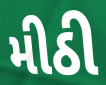
મીઠી